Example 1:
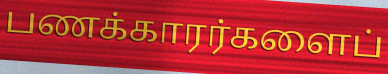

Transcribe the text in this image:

பணக்காரர்களைப்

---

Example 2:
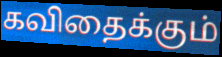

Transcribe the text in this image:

கவிதைக்கும்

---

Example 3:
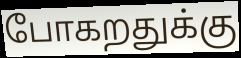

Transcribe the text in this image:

போகறதுக்கு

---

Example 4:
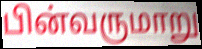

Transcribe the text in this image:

பின்வருமாறு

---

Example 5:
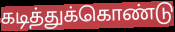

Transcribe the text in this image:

கடித்துக்கொண்டு